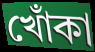
খোঁকা